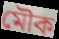
মৌক